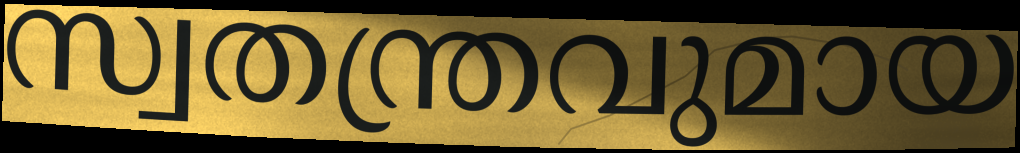
സ്വതന്ത്രവുമായ